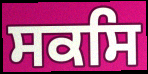
ਸਕਸਿ